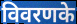
विवरणके